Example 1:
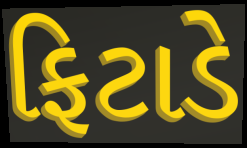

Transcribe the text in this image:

ફિટાડે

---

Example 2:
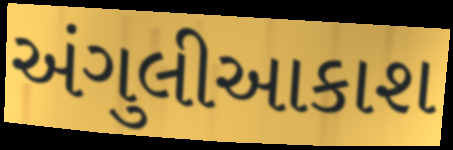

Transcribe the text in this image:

અંગુલીઆકાશ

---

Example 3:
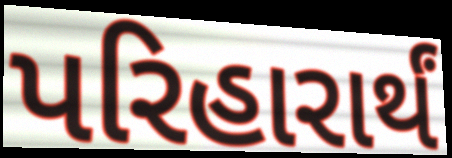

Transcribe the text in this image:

પરિહારાર્થં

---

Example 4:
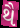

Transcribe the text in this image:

થૈ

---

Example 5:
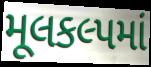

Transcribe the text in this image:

મૂલકલ્પમાં